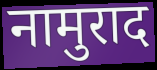
नामुराद